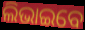
ଲିଭାଇବେ